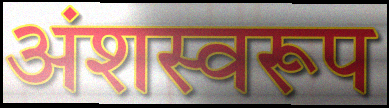
अंशस्वरूप